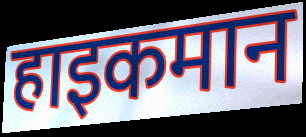
हाइकमान